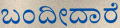
ಬಂದೀದಾರೆ